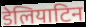
डेलियाटिन